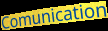
Comunication